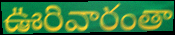
ఊరివారంతా